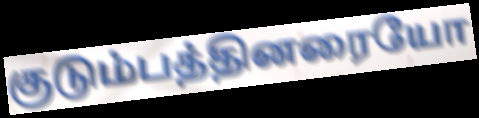
குடும்பத்தினரையோ